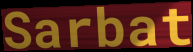
Sarbat